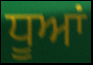
ਧੂਆਂ